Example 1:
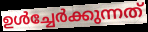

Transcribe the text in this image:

ഉൾച്ചേർക്കുന്നത്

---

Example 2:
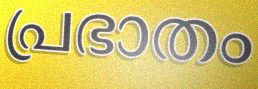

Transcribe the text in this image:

പ്രഭാതം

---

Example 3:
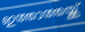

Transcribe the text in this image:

ഇത്താത്തയ്ക്ക്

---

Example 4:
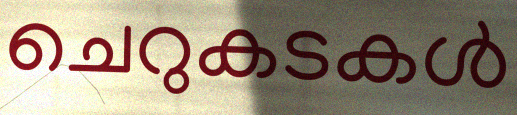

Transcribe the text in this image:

ചെറുകടകൾ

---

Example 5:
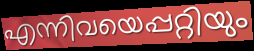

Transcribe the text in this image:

എന്നിവയെപ്പറ്റിയും